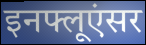
इनफ्लूएंसर